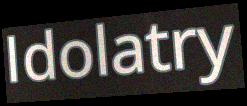
Idolatry